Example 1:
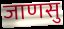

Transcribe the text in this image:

जाणसु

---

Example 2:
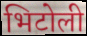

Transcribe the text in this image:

भिटोली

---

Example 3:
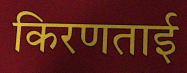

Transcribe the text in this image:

किरणताई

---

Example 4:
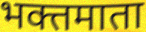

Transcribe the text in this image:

भक्तमाता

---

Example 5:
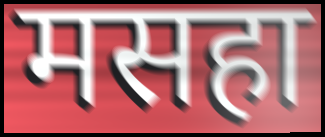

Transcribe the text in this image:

मसहा